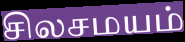
சிலசமயம்